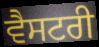
ਵੈਸਟਰੀ